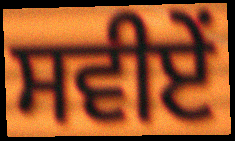
ਸਵੀਏਂ